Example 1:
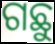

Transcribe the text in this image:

ଗଛୁ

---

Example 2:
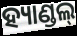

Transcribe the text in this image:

ହ୍ୟାଣ୍ଡଲ୍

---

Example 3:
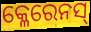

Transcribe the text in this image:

କ୍ଳେରେନସ୍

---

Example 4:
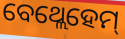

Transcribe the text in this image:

ବେଥ୍ଲେହେମ୍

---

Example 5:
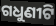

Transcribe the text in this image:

ଗଧୁଣୀଟି